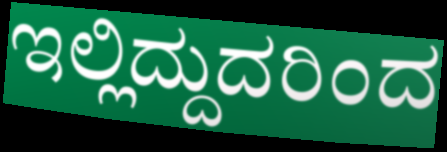
ಇಲ್ಲಿದ್ದುದರಿಂದ